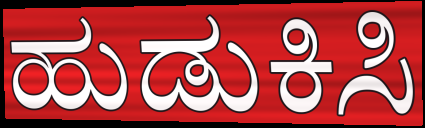
ಹುಡುಕಿಸಿ